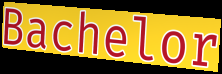
Bachelor